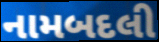
નામબદલી